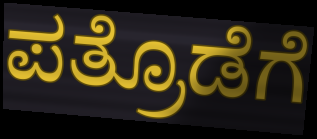
ಪತ್ರೊಡೆಗೆ